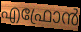
എഫ്രോൻ